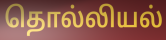
தொல்லியல்